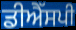
ਡੀਐੱਸਪੀ